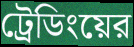
ট্রেডিংয়ের